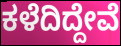
ಕಳೆದಿದ್ದೇವೆ